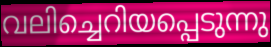
വലിച്ചെറിയപ്പെടുന്നു